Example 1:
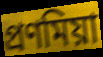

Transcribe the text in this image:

প্রণমিয়া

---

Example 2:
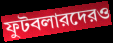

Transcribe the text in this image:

ফুটবলারদেরও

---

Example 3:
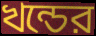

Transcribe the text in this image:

খন্ডের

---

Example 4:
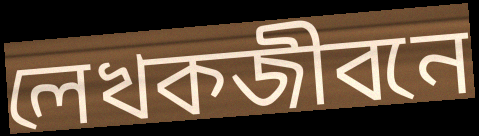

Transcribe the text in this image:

লেখকজীবনে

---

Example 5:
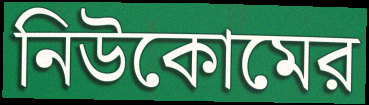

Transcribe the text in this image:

নিউকোমের